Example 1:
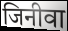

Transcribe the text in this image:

जिनीवा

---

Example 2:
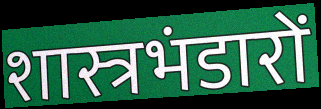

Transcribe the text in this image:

शास्त्रभंडारों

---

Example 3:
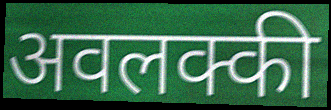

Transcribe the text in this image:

अवलक्की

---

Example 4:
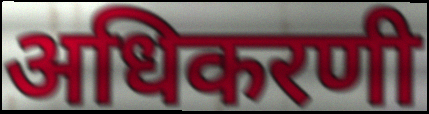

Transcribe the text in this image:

अधिकरणी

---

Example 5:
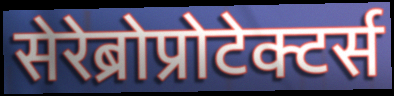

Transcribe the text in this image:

सेरेब्रोप्रोटेक्टर्स